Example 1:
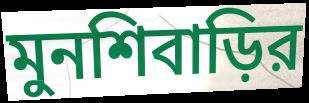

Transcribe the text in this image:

মুনশিবাড়ির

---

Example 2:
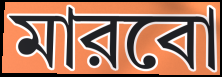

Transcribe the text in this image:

মারবো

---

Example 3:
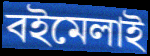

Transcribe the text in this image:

বইমেলাই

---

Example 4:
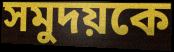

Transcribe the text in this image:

সমুদয়কে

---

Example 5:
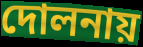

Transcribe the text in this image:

দোলনায়